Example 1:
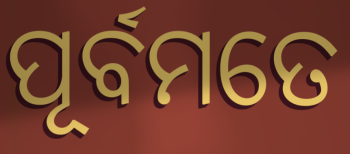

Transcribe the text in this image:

ପୂର୍ବମତେ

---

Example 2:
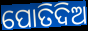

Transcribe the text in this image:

ପୋତିଦିଅ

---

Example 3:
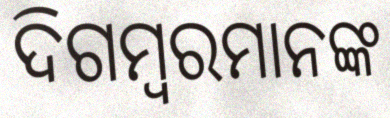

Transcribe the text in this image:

ଦିଗମ୍ବରମାନଙ୍କ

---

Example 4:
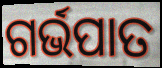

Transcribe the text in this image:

ଗର୍ଭପାତ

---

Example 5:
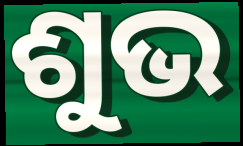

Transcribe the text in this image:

ଶୁଭ